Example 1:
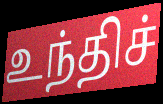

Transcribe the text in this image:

உந்திச்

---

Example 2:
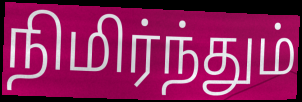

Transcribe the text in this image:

நிமிர்ந்தும்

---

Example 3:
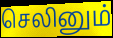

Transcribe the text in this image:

செலினும்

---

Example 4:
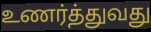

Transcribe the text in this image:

உணர்த்துவது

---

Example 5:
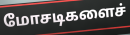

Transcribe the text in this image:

மோசடிகளைச்